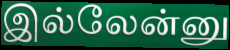
இல்லேன்னு